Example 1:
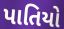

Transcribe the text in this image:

પાતિયો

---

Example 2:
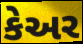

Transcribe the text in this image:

કેઅર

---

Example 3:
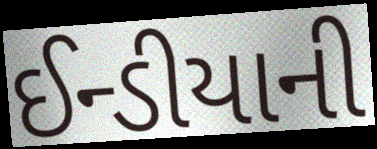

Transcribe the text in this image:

ઈન્ડીયાની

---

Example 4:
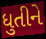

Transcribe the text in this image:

ધુતીને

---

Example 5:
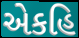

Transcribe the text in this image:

એકહિ